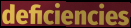
deficiencies